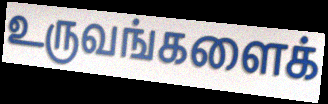
உருவங்களைக்